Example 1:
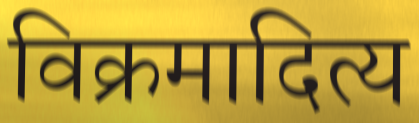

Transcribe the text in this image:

विक्रमादित्य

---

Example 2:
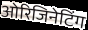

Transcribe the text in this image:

ओरिजिनेटिंग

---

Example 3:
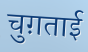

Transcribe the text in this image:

चुग़ताई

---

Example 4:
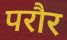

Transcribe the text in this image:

परौर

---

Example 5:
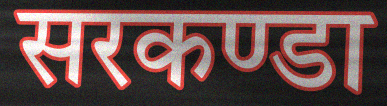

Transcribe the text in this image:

सरकण्डा